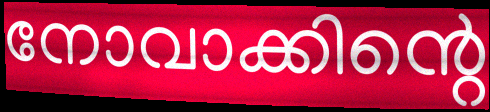
നോവാക്കിന്റെ